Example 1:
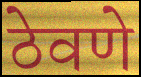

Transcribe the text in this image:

ठेवणे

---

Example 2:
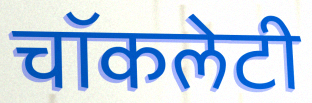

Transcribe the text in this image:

चॉकलेटी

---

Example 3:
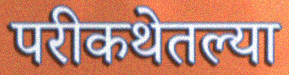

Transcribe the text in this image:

परीकथेतल्या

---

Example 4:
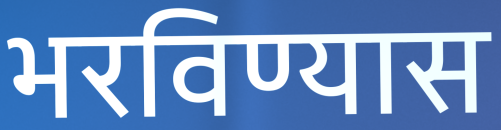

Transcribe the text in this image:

भरविण्यास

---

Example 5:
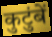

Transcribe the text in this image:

कुटुंबें